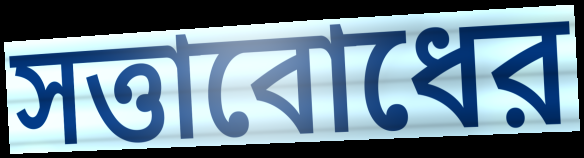
সত্তাবোধের